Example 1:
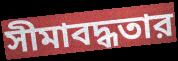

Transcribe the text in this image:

সীমাবদ্ধতার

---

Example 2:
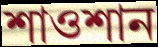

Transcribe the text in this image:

শাওশান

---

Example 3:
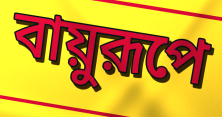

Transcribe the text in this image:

বায়ুরূপে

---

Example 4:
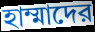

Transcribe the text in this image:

হাম্মাদের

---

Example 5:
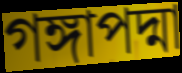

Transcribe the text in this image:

গঙ্গাপদ্মা